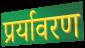
प्रर्यावरण